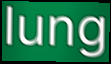
lung